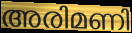
അരിമണി